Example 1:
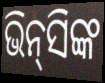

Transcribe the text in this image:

ଭିନ୍‍ସିଙ୍କ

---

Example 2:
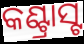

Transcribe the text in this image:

କଣ୍ଟ୍ରାସ୍ଟ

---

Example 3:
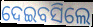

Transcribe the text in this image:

ଦେଇବସିଲେ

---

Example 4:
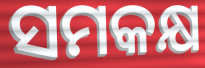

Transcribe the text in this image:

ସମକକ୍ଷ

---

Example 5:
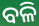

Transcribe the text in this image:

ବଳି